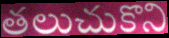
తలుచుకొని